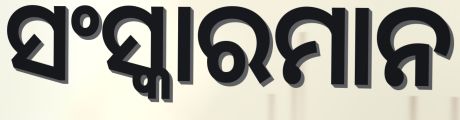
ସଂସ୍କାରମାନ